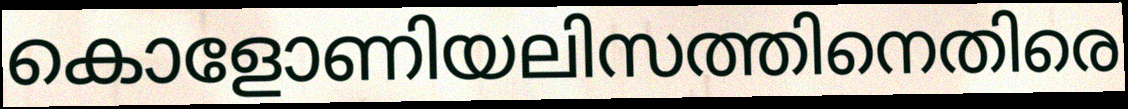
കൊളോണിയലിസത്തിനെതിരെ